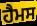
ਹੈਮਸ